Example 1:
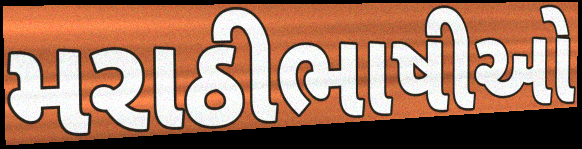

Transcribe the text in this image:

મરાઠીભાષીઓ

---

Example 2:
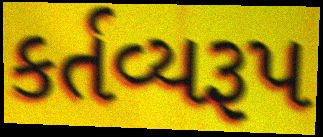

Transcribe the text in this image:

કર્તવ્યરૂપ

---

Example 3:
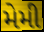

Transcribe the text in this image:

મેમી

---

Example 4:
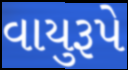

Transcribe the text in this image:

વાયુરૂપે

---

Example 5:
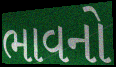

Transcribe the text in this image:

ભાવનો